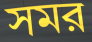
সমর